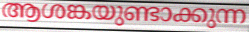
ആശങ്കയുണ്ടാക്കുന്ന